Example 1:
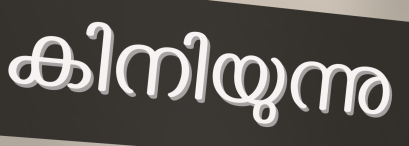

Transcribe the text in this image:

കിനിയുന്നു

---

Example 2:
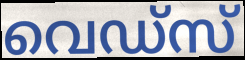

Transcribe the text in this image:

വെഡ്സ്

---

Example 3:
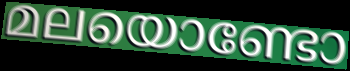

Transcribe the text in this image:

മലയൊണ്ടോ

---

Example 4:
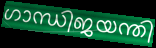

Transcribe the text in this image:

ഗാന്ധിജയന്തി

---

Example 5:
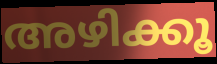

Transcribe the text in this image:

അഴിക്കൂ